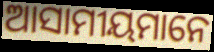
ଆସାମୀୟମାନେ